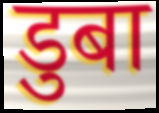
डुबा